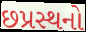
છપ્રસ્થનો